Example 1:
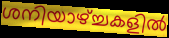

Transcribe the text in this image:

ശനിയാഴ്ച്ചകളിൽ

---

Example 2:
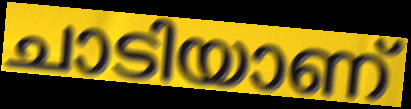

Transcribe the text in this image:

ചാടിയാണ്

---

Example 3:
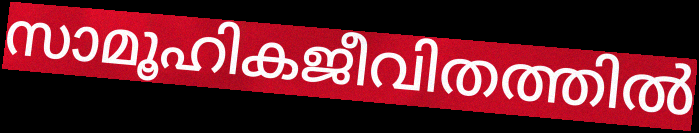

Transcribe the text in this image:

സാമൂഹികജീവിതത്തിൽ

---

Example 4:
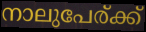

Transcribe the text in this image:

നാലുപേര്ക്ക്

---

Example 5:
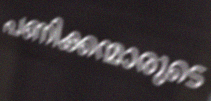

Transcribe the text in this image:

പണിക്കന്മാരുടെ